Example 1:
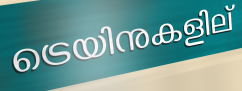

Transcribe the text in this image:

ട്രെയിനുകളില്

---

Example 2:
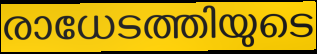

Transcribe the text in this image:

രാധേടത്തിയുടെ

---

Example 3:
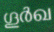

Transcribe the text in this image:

ഗൂർഖ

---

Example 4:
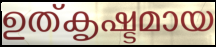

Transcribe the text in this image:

ഉത്കൃഷ്ടമായ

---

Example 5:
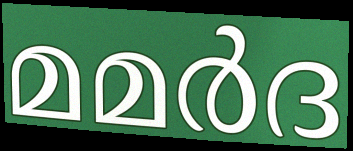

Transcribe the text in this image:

മമർദ